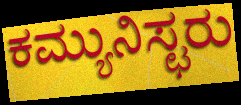
ಕಮ್ಯುನಿಸ್ಟರು